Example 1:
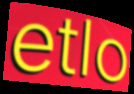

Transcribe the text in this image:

etlo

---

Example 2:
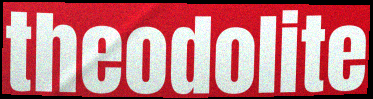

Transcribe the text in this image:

theodolite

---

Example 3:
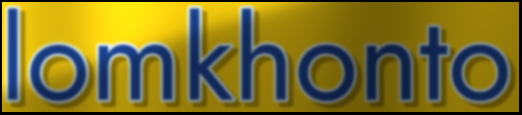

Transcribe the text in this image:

lomkhonto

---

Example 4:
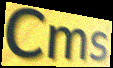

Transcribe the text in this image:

Cms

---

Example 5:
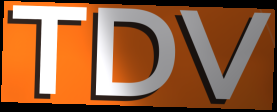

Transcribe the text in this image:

TDV